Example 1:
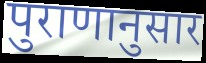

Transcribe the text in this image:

पुराणानुसार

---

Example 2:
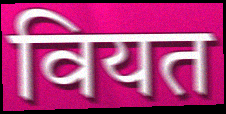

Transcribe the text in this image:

वियत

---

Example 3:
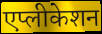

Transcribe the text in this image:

एप्‍लीकेशन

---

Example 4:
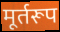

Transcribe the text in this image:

मूर्तरूप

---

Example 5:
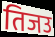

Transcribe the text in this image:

तिजउ